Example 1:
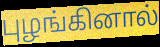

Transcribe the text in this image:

புழங்கினால்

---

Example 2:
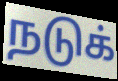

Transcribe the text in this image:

நடுக்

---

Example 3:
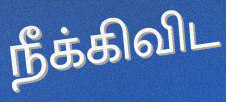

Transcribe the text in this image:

நீக்கிவிட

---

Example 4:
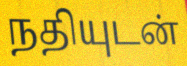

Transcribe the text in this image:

நதியுடன்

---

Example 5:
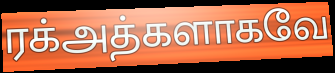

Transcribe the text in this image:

ரக்அத்களாகவே